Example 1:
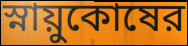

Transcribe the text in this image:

স্নায়ুকোষের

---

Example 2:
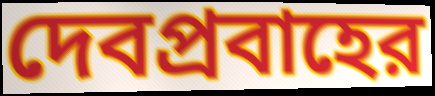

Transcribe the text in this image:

দেবপ্রবাহের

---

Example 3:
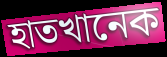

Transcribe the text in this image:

হাতখানেক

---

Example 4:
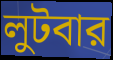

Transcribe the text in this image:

লুটবার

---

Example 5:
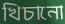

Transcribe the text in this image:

খিচানো